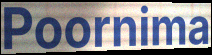
Poornima